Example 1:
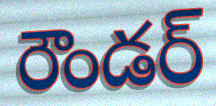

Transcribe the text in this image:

రౌండర్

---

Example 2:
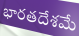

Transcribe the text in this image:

భారతదేశమే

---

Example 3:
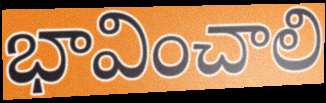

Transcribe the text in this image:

భావించాలి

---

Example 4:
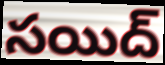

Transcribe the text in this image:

సయిద్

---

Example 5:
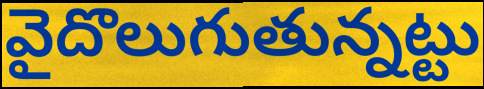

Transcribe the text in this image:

వైదొలుగుతున్నట్టు